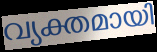
വ്യക്തമായി